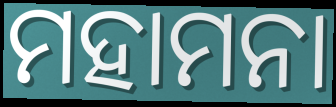
ମହାମନା